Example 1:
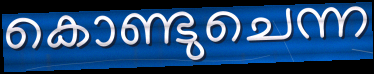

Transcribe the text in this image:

കൊണ്ടുചെന്ന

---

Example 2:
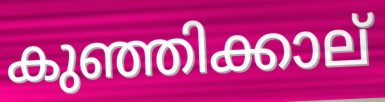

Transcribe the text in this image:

കുഞ്ഞിക്കാല്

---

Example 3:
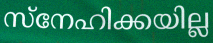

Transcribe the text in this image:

സ്നേഹിക്കയില്ല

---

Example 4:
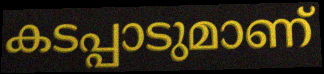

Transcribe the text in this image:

കടപ്പാടുമാണ്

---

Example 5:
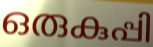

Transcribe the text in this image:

ഒരുകുപ്പി